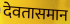
देवतासमान